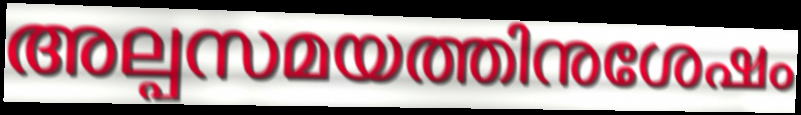
അല്പസമയത്തിനുശേഷം